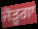
ਜੋੜੂਗਾ